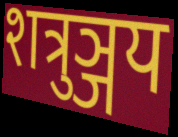
शत्रुञ्जय